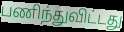
பணிந்துவிட்டது